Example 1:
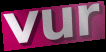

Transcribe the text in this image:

vur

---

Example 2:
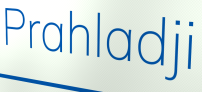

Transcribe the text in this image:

Prahladji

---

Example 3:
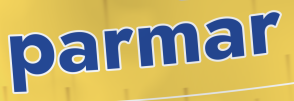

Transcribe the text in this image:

parmar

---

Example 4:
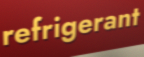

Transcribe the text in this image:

refrigerant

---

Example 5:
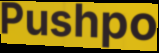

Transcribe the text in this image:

Pushpo